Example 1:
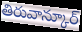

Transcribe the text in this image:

తిరువాన్కూర్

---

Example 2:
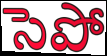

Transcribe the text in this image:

సెపో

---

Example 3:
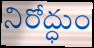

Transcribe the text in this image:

నిరోద్ధుం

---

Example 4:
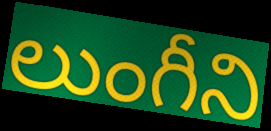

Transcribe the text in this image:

లుంగీని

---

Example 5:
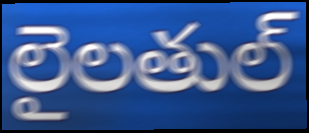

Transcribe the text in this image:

లైలతుల్